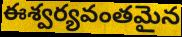
ఈశ్వర్యవంతమైన